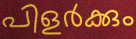
പിളർക്കും